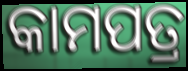
କାମପତ୍ର